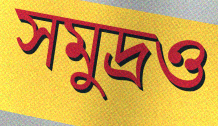
সমুদ্রও